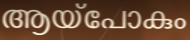
ആയ്പോകും